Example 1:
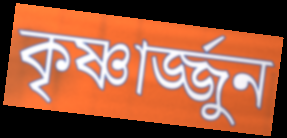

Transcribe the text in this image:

কৃষ্ণার্জ্জুন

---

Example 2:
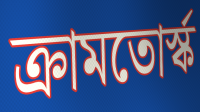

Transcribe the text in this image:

ক্রামতোর্স্ক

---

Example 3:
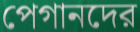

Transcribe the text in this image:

পেগানদের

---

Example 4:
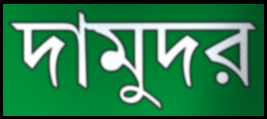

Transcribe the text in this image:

দামুদর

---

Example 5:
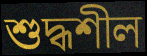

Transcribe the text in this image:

শুদ্ধশীল